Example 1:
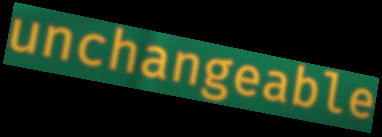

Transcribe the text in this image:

unchangeable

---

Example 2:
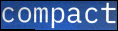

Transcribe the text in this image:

compact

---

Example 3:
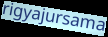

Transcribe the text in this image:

rigyajursama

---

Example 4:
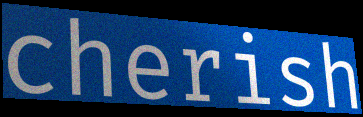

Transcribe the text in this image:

cherish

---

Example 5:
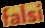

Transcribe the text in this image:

falsi